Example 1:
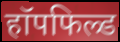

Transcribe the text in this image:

हॉपफिल्ड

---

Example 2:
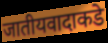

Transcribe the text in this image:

जातीयवादाकडे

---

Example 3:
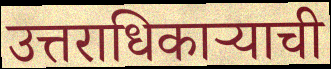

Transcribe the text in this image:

उत्तराधिकाऱ्याची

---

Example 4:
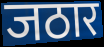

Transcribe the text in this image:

जठार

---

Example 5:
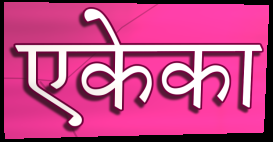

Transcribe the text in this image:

एकेका